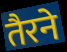
तैरने